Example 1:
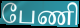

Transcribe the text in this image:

பேணி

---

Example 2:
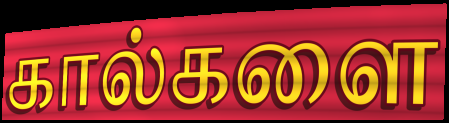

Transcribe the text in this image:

கால்களை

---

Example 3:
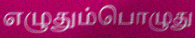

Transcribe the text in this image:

எழுதும்பொழுது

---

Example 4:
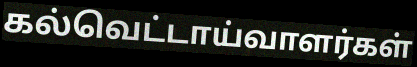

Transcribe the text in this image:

கல்வெட்டாய்வாளர்கள்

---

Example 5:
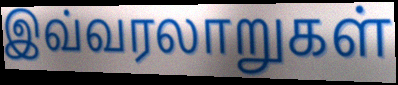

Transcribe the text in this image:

இவ்வரலாறுகள்